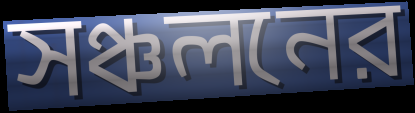
সঞ্চলনের